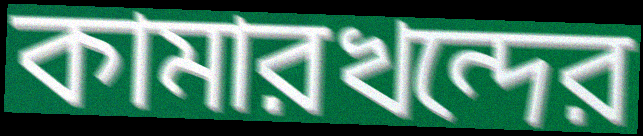
কামারখন্দের